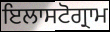
ਇਲਾਸਟੋਗ੍ਰਾਮ